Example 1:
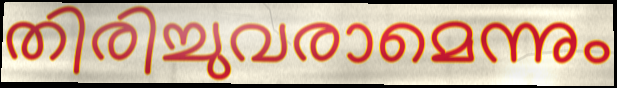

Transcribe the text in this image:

തിരിച്ചുവരാമെന്നും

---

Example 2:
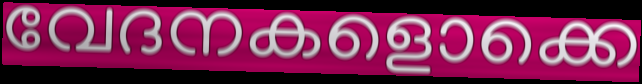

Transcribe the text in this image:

വേദനകളൊക്കെ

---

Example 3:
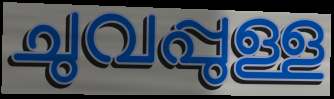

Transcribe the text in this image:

ചുവപ്പുള്ള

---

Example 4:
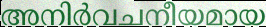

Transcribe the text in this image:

അനിർവചനീയമായ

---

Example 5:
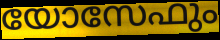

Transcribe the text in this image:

യോസേഫും